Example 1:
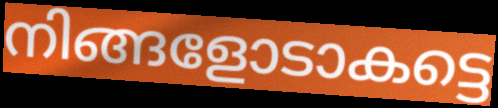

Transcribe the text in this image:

നിങ്ങളോടാകട്ടെ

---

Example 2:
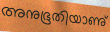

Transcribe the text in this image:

അനുഭൂതിയാണു്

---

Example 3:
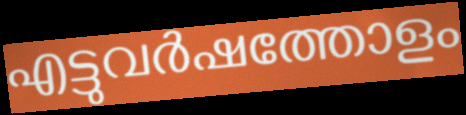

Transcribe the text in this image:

എട്ടുവർഷത്തോളം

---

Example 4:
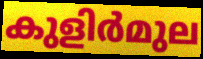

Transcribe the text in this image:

കുളിർമുല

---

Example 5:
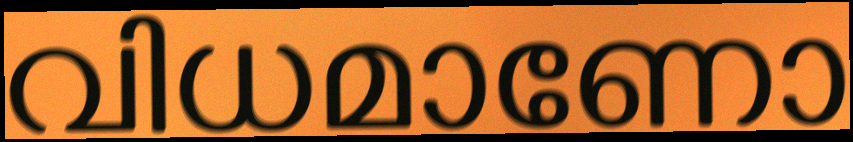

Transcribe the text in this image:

വിധമാണോ